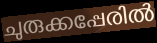
ചുരുക്കപ്പേരിൽ